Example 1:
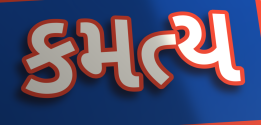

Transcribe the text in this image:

કમત્ય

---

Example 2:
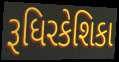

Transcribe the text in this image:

રૂધિરકેશિકા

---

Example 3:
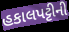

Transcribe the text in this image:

હકાલપટ્ટીની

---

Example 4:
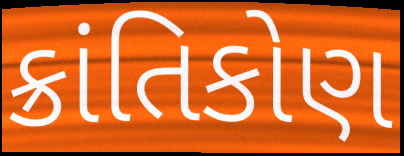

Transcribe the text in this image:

ક્રાંતિકોણ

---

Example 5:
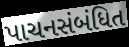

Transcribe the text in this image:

પાચનસંબંધિત